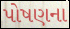
પોષણના